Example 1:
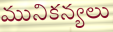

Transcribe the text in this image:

మునికన్యలు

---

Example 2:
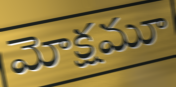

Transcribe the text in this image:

మోక్షమూ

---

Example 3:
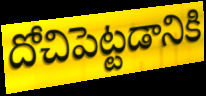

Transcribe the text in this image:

దోచిపెట్టడానికి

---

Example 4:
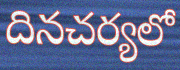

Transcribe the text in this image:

దినచర్యలో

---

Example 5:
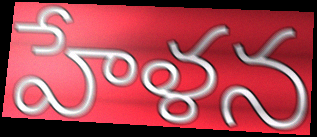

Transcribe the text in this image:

హేళన